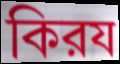
কিরয